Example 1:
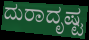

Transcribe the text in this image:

ದುರಾದೃಷ್ಟ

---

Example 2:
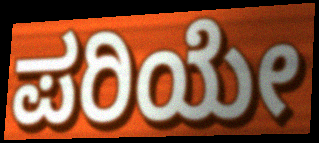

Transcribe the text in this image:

ಪರಿಯೇ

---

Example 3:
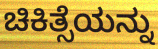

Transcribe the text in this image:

ಚಿಕಿತ್ಸೆಯನ್ನು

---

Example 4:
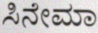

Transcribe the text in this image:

ಸಿನೇಮಾ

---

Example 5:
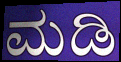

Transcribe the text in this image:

ಮಡಿ